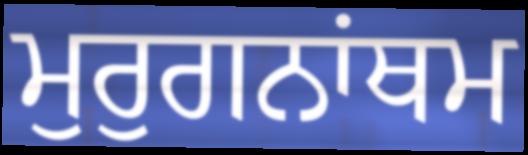
ਮੁਰੁਗਨਾਂਥਮ